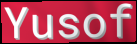
Yusof